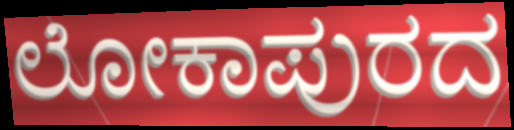
ಲೋಕಾಪುರದ